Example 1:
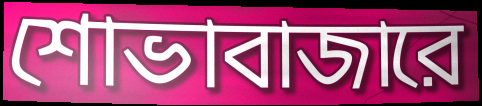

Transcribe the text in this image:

শোভাবাজারে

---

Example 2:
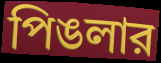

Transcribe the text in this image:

পিঙলার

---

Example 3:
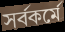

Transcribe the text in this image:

সর্বকর্মে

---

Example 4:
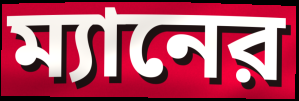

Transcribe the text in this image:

ম্যানের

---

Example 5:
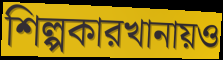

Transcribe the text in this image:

শিল্পকারখানায়ও